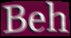
Beh